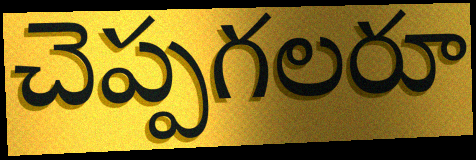
చెప్పగలరూ